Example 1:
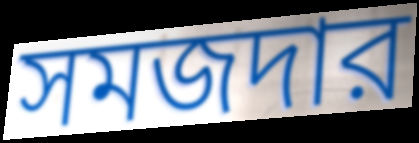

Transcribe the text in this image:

সমজদার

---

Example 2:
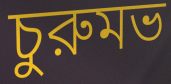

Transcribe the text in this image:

চুরুমভ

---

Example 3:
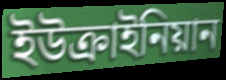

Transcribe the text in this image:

ইউক্রাইনিয়ান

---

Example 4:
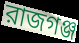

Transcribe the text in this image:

রাজগঞ্জ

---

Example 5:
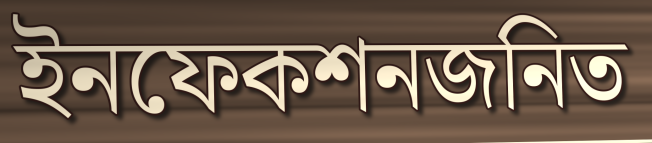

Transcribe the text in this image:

ইনফেকশনজনিত